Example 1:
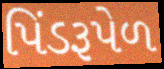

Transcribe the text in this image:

પિંડરૂપેળ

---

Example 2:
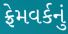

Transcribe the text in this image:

ફ્રેમવર્કનું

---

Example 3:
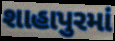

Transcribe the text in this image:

શાહાપુરમાં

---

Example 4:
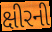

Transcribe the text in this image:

ક્ષીરની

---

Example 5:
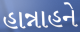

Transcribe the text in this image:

હાન્નાહને